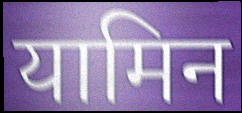
यामिन